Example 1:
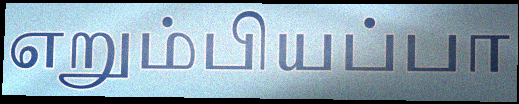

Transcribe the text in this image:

எறும்பியப்பா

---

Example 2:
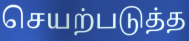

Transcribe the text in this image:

செயற்படுத்த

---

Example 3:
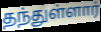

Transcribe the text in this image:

தந்துள்ளார்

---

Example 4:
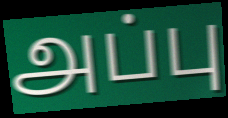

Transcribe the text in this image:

அப்பு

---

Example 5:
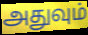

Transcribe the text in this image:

அதுவும்